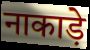
नाकाड़े